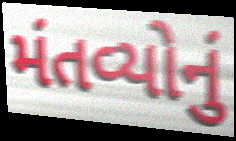
મંતવ્યોનું